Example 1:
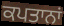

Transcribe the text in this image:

ਕਪਤਾਨਾਂ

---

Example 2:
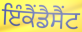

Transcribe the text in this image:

ਇੰਕੈਂਡੈਸੈਂਟ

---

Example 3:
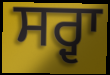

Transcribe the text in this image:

ਸਰ੍ਦਾ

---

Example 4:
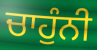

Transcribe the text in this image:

ਚਾਹੁੰਨੀ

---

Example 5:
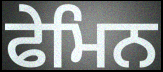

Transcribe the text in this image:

ਫੇਮਿਨ